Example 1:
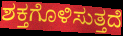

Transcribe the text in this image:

ಶಕ್ತಗೊಳಿಸುತ್ತದೆ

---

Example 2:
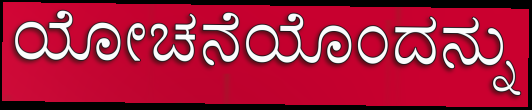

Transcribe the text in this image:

ಯೋಚನೆಯೊಂದನ್ನು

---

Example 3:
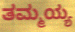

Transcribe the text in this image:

ತಮ್ಮಯ್ಯ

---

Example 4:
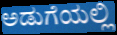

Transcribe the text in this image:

ಅಡುಗೆಯಲ್ಲಿ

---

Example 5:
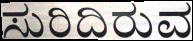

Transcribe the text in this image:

ಸುರಿದಿರುವ